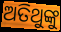
ଅତିଥୁଙ୍କୁ